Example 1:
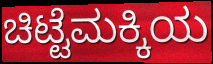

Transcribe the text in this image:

ಚಿಟ್ಟೆಮಕ್ಕಿಯ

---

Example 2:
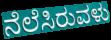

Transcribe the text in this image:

ನೆಲೆಸಿರುವಳು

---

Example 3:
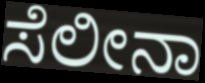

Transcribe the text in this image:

ಸೆಲೀನಾ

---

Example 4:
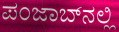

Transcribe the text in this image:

ಪಂಜಾಬ್‌ನಲ್ಲಿ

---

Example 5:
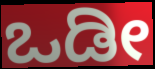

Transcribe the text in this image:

ಒಡೀ